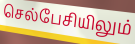
செல்பேசியிலும்